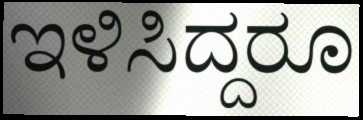
ಇಳಿಸಿದ್ದರೂ